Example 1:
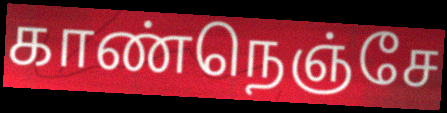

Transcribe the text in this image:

காண்நெஞ்சே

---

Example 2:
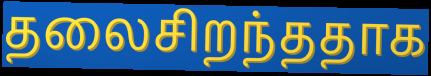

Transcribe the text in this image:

தலைசிறந்ததாக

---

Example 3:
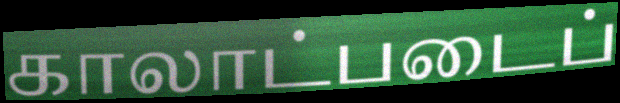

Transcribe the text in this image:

காலாட்படைப்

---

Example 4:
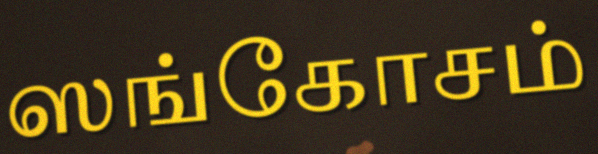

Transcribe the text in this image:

ஸங்கோசம்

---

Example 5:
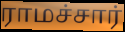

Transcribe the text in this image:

ராமச்சார்